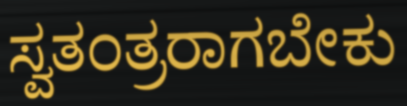
ಸ್ವತಂತ್ರರಾಗಬೇಕು